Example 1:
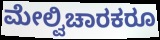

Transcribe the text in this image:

ಮೇಲ್ವಿಚಾರಕರೂ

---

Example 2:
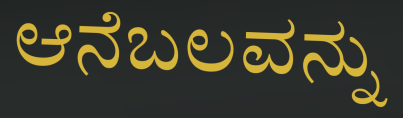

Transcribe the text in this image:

ಆನೆಬಲವನ್ನು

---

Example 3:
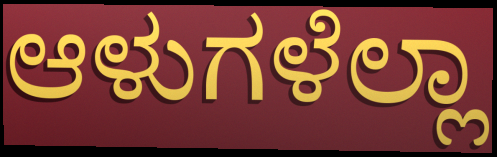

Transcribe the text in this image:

ಆಳುಗಳೆಲ್ಲಾ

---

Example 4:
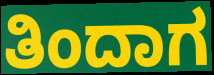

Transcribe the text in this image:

ತಿಂದಾಗ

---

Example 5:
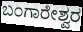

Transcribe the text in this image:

ಬಂಗಾರೇಶ್ವರ